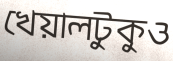
খেয়ালটুকুও